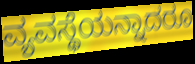
ವ್ಯವಸ್ಥೆಯನ್ನಾದರೂ